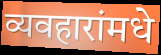
व्यवहारांमधे